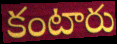
కంటారు